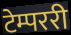
टेम्पररी